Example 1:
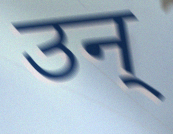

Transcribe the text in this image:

उन्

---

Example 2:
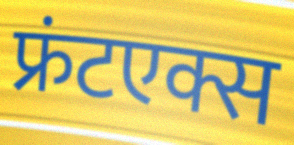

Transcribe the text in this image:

फ्रंटएक्स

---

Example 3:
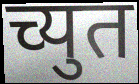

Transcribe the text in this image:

च्‍युत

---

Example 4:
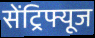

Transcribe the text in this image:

सेंट्रिफ्यूज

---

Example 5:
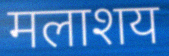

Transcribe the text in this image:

मलाशय